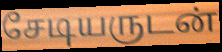
சேடியருடன்